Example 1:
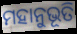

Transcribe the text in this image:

ମହାନୁଭୂତି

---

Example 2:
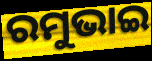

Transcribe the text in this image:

ରମୁଭାଇ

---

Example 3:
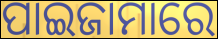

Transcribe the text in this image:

ପାଇଜାମାରେ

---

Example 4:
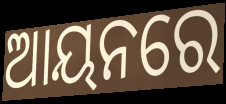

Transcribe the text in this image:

ଆୟନରେ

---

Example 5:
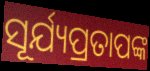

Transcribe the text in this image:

ସୂର୍ଯ୍ୟପ୍ରତାପଙ୍କ